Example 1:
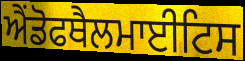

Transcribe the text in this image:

ਐਂਡੋਫਥੈਲਮਾਈਟਿਸ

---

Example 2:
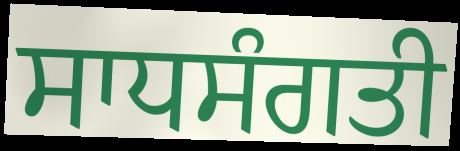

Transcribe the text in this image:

ਸਾਧਸੰਗਤੀ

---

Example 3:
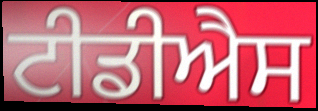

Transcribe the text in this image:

ਟੀਡੀਐਸ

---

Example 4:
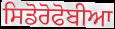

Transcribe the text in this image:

ਸਿਡੋਰੋਫੋਬੀਆ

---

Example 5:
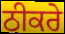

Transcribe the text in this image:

ਠੀਕਰੇ